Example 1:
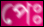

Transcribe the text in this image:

পেঃ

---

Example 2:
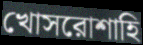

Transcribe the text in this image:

খোসরোশাহি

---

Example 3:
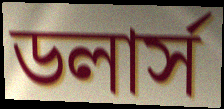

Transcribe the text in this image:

ডলার্স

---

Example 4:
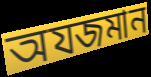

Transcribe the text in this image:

অযজমান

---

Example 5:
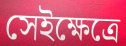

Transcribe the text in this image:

সেইক্ষেত্রে